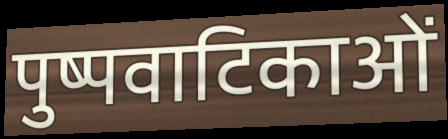
पुष्पवाटिकाओं